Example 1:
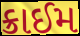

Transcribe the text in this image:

ક્રાઈમ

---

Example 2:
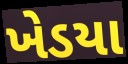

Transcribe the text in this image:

ખેડયા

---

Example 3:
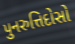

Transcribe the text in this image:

પુનરુત્તિદોસો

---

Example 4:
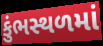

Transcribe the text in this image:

કુંભસ્થળમાં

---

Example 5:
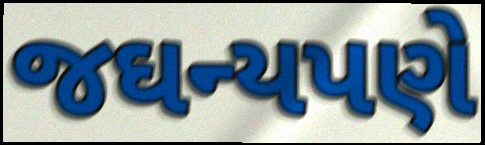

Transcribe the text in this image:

જઘન્યપણે